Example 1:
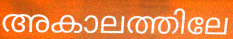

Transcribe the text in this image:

അകാലത്തിലേ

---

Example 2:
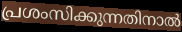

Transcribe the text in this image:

പ്രശംസിക്കുന്നതിനാൽ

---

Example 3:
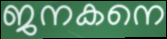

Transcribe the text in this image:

ജനകനെ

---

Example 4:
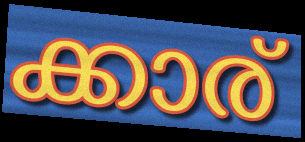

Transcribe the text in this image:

ക്കാര്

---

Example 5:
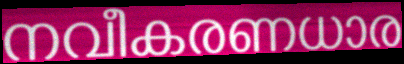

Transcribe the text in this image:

നവീകരണധാര